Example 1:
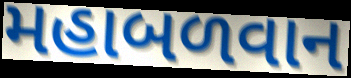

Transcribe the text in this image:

મહાબળવાન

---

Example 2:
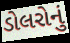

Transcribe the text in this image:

ડોલરોનું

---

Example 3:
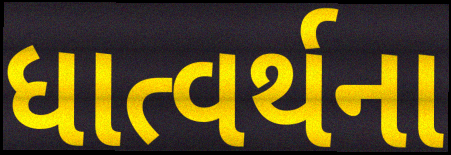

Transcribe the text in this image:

ધાત્વર્થના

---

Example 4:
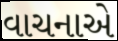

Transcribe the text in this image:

વાચનાએ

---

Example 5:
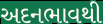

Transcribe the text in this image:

અદનભાવથી